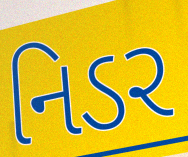
નિડર